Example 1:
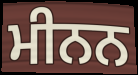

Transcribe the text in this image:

ਮੀਨਨ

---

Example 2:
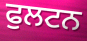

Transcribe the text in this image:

ਫੁਲਟਨ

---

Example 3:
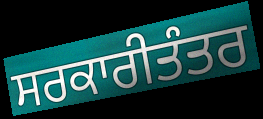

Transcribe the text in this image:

ਸਰਕਾਰੀਤੰਤਰ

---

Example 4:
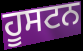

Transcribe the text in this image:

ਹੂਸਟਨ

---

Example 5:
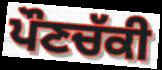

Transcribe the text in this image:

ਪੌਣਚੱਕੀ